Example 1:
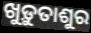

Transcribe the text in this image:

ଖୁଡ଼ୁତାଶୁର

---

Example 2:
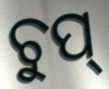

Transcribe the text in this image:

ଚୁପ୍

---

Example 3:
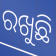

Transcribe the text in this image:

ରଖୁଛି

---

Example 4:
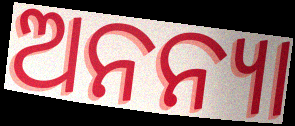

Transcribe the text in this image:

ଅନନ୍ୟା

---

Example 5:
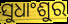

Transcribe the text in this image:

ସୁଧାଂଶୁର